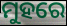
ମୁହରେ